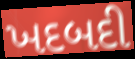
ખદબદી